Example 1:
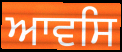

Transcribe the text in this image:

ਆਵਸਿ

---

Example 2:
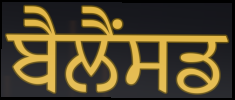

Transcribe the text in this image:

ਬੈਲੈਂਸਡ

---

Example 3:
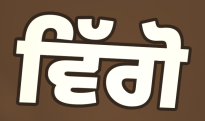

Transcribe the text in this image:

ਵਿੱਗੋ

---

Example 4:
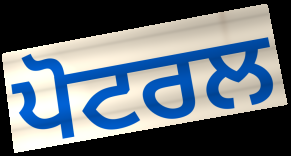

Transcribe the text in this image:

ਪੋਟਰਲ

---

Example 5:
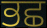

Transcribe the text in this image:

ਭਛ